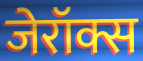
जेरॉक्स